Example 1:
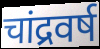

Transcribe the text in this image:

चांद्रवर्ष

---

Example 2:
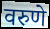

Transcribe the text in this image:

वरुणे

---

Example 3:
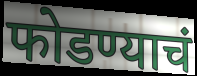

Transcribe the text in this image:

फोडण्याचं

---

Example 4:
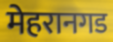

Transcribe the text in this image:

मेहरानगड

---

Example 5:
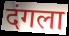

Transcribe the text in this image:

दंगला